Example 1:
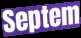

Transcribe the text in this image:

Septem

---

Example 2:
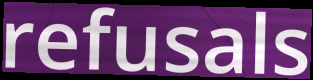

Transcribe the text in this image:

refusals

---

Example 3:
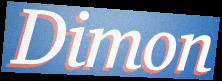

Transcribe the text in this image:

Dimon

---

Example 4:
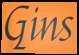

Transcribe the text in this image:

Gins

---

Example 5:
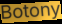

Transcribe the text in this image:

Botony